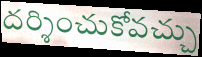
దర్శించుకోవచ్చు